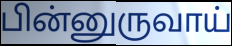
பின்னுருவாய்